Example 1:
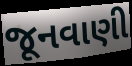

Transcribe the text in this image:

જૂનવાણી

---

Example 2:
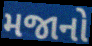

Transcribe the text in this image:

મજાનો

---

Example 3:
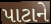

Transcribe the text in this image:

પાટાને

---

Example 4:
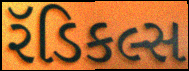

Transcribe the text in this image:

રૅડિકલ્સ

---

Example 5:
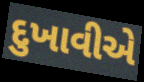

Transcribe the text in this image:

દુખાવીએ